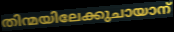
തിന്മയിലേക്കുചായാന്